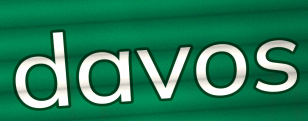
davos